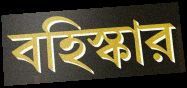
বহিস্কার